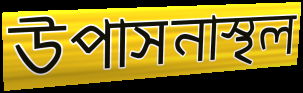
উপাসনাস্থল